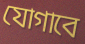
যোগাবে